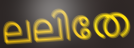
ലലിതേ